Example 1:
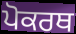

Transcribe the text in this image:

ਪੋਕਰਥ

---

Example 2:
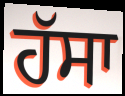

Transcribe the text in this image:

ਹੱਸਾ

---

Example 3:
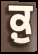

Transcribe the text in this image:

ਕ਼ੁ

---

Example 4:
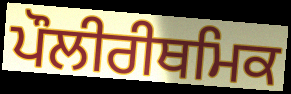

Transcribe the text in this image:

ਪੌਲੀਰੀਥਮਿਕ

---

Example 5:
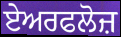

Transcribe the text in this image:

ਏਅਰਫਲੋਜ਼